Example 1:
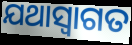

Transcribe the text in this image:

ଯଥାସ୍ଵାଗତ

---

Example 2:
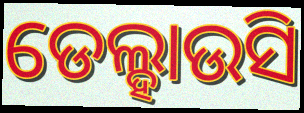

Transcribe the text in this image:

ଡେଲ୍ହାଉସି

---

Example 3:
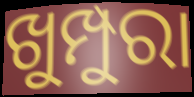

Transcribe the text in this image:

ଖୁମ୍ପୁରା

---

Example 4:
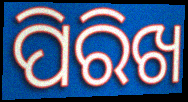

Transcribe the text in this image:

ପିରିଖ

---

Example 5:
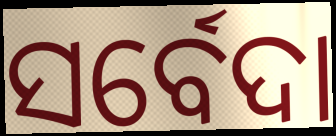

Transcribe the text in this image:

ସର୍ବେଦା